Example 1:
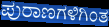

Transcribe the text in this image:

ಪುರಾಣಗಳಿಗಿಂತ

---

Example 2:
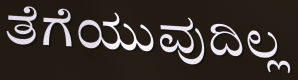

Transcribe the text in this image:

ತೆಗೆಯುವುದಿಲ್ಲ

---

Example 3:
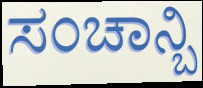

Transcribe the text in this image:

ಸಂಚಾನ್ಬಿ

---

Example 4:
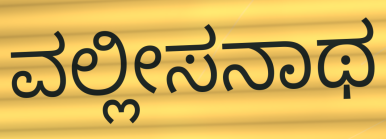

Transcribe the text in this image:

ವಲ್ಲೀಸನಾಥ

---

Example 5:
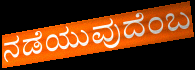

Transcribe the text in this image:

ನಡೆಯುವುದೆಂಬ